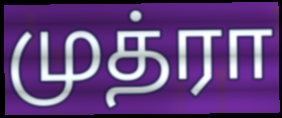
முத்ரா